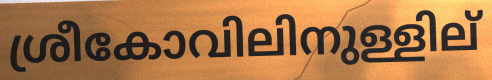
ശ്രീകോവിലിനുള്ളില്